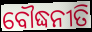
ବୌଦ୍ଧନୀତି